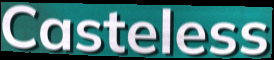
Casteless